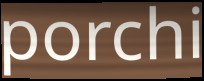
porchi